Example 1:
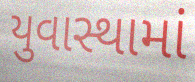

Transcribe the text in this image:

યુવાસ્થામાં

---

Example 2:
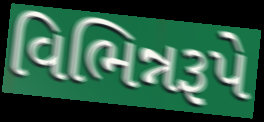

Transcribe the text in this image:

વિભિન્નરૂપે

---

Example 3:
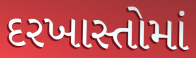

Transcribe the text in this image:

દરખાસ્તોમાં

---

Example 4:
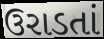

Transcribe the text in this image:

ઉરાડતાં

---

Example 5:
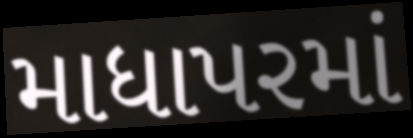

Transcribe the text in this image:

માધાપરમાં